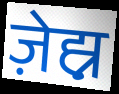
ज़ेह्न